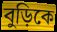
বুড়িকে